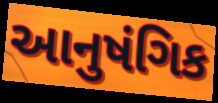
આનુષંગિક